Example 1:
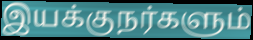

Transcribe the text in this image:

இயக்குநர்களும்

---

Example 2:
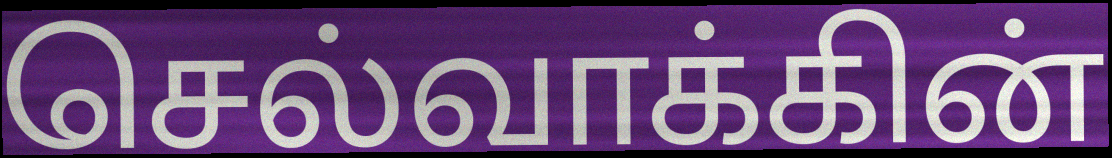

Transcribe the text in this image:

செல்வாக்கின்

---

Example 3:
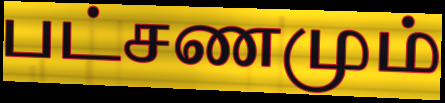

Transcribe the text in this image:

பட்சணமும்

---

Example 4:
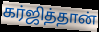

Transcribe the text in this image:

கர்ஜித்தான்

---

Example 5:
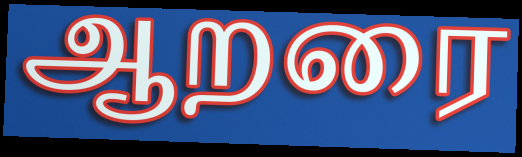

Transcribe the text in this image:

ஆறரை